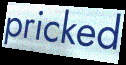
pricked